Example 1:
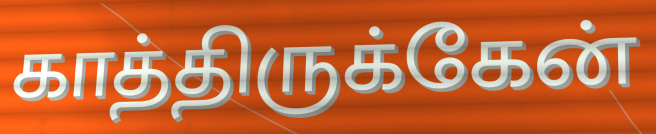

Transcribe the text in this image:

காத்திருக்கேன்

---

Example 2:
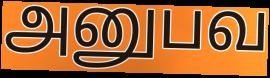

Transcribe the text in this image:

அனுபவ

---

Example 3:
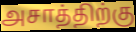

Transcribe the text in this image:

அசாத்திற்கு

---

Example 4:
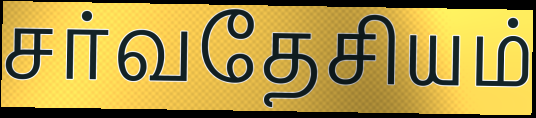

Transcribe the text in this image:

சர்வதேசியம்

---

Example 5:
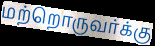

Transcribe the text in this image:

மற்றொருவர்க்கு